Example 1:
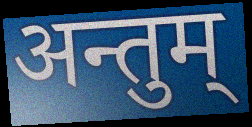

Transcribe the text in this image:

अन्तुम्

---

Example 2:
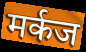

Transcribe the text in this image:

मर्कज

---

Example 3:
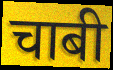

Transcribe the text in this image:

चाबी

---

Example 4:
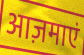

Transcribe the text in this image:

आज़माएं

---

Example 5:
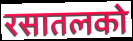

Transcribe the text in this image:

रसातलको